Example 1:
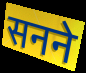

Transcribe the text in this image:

सनने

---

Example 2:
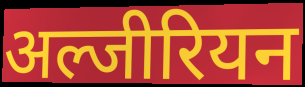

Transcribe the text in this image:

अल्जीरियन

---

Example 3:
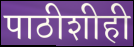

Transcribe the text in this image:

पाठीशीही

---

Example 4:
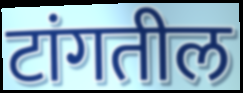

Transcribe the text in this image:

टांगतील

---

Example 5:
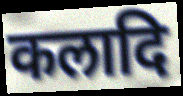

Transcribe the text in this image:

कलादि